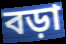
বড়া